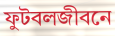
ফুটবলজীবনে